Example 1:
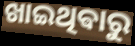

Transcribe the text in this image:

ଖାଇଥିଵାରୁ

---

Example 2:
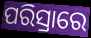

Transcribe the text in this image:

ପରିସ୍ରାରେ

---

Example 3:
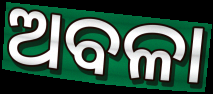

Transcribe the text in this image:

ଅବଳା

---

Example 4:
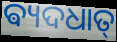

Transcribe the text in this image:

ଵ୍ୟଦଧାତ୍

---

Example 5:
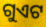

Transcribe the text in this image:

ଗୁଏଟ